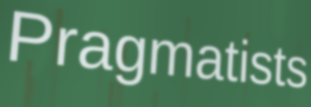
Pragmatists